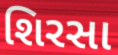
શિરસા